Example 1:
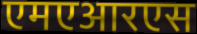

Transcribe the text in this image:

एमएआरएस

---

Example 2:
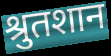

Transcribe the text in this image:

श्रुतशान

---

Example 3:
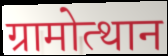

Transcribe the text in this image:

ग्रामोत्थान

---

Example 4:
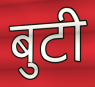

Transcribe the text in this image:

बुटी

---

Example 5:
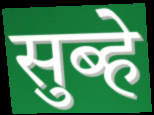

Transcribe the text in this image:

सुब्हे